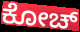
ಕೋಚ್